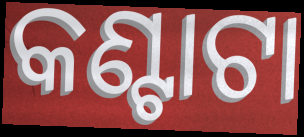
କଣ୍ଟାଟା